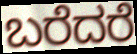
ಬರೆದರೆ